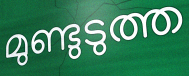
മുണ്ടുടുത്ത